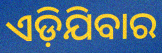
ଏଡ଼ିଯିବାର